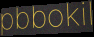
pbbokil